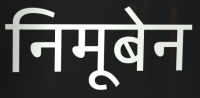
निमूबेन